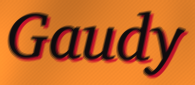
Gaudy